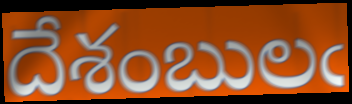
దేశంబులఁ